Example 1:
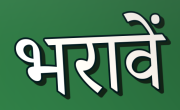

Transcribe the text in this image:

भरावें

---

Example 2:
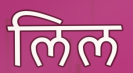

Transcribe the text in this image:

लिल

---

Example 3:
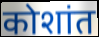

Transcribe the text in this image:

कोशांत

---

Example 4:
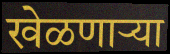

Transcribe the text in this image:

खेळणाऱ्या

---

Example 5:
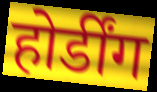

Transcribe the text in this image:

होर्डींग